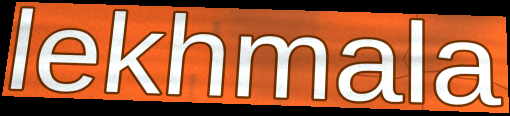
lekhmala